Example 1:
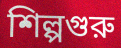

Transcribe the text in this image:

শিল্পগুরু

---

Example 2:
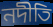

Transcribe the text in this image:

নদীতি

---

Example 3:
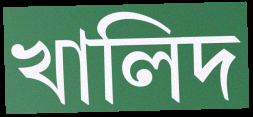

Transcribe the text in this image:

খালিদ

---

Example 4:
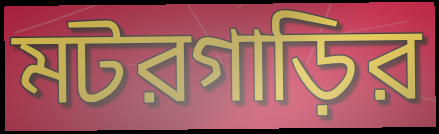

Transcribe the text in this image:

মটরগাড়ির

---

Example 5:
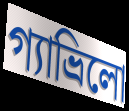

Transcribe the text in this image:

গ্যাভ্রিলো